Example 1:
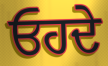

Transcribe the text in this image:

ਓਹਦੇ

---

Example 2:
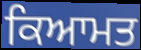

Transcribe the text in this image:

ਕਿਆਮਤ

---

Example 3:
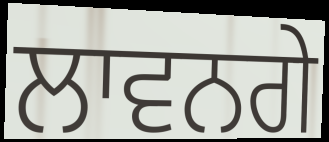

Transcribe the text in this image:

ਲਾਵਨਗੇ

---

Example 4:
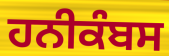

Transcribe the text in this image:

ਹਨੀਕੰਬਸ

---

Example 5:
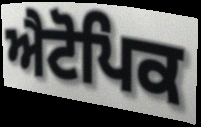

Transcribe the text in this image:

ਐਟੋਪਿਕ